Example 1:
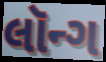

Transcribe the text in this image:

લૉન્ગ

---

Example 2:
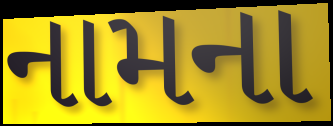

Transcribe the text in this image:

નામના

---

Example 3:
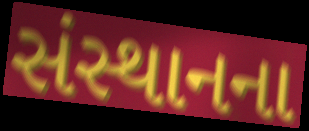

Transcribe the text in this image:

સંસ્થાનના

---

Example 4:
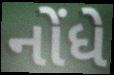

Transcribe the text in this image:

નોંધે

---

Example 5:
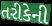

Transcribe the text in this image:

તરીકેની